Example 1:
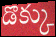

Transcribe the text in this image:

డొక్కు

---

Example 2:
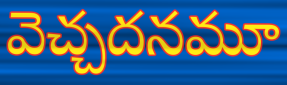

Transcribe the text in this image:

వెచ్చదనమూ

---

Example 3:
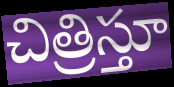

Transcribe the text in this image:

చిత్రిస్తూ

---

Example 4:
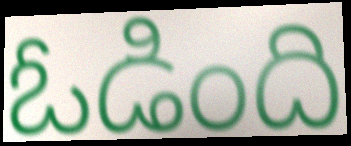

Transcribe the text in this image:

ఓడింది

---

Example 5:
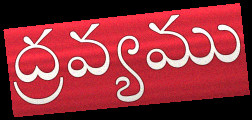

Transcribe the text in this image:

ద్రవ్యము